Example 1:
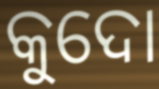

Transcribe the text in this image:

କୁଦୋ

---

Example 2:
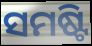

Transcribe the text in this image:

ସମଷ୍ଟି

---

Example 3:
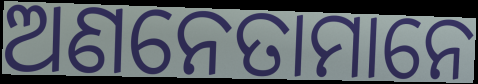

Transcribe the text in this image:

ଅଣନେତାମାନେ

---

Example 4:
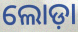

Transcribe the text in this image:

ଲୋଡ଼ା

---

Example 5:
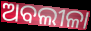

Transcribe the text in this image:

ଅବଲୀଳା